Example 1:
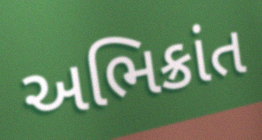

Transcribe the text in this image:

અભિક્રાંત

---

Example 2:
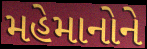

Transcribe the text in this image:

મહેમાનોને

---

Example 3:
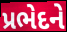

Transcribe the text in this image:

પ્રભેદને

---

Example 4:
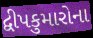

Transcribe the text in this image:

દ્વીપકુમારોના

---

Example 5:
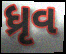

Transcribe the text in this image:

ધ્રૃવ